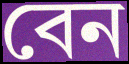
বেন